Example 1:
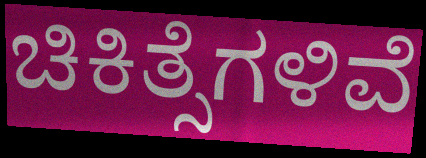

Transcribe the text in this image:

ಚಿಕಿತ್ಸೆಗಳಿವೆ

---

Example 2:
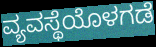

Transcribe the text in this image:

ವ್ಯವಸ್ಥೆಯೊಳಗಡೆ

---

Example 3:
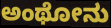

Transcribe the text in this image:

ಅಂಥೋನು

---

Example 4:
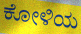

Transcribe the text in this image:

ಕೋಳಿಯ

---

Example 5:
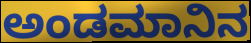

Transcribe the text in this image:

ಅಂಡಮಾನಿನ